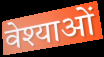
वेश्याओं